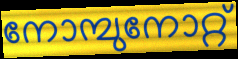
നോമ്പുനോറ്റ്